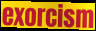
exorcism